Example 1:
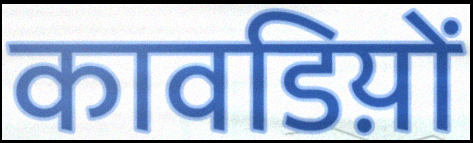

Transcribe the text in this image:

कावडिय़ों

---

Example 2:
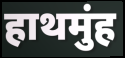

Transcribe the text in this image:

हाथमुंह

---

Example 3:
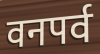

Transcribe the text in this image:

वनपर्व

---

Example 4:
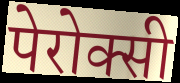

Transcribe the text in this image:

पेरोक्सी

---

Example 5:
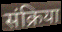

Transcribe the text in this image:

संक्रिया